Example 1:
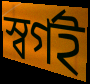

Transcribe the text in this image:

স্বৰ্গই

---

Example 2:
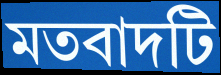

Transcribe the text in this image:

মতবাদটি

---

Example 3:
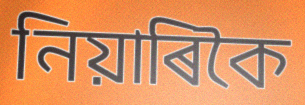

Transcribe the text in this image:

নিয়াৰিকৈ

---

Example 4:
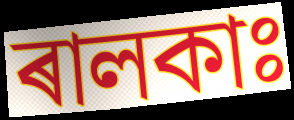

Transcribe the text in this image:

ৰালকাঃ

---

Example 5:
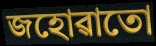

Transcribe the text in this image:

জহোৱাতো